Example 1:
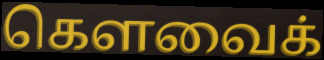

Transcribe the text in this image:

கௌவைக்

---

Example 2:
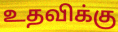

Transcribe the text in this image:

உதவிக்கு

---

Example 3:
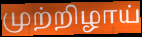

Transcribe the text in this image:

முற்றிழாய்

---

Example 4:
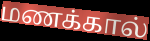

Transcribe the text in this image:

மணக்கால்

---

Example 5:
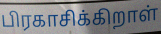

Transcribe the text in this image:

பிரகாசிக்கிறாள்